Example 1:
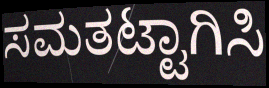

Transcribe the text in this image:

ಸಮತಟ್ಟಾಗಿಸಿ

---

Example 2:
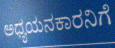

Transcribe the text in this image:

ಅಧ್ಯಯನಕಾರನಿಗೆ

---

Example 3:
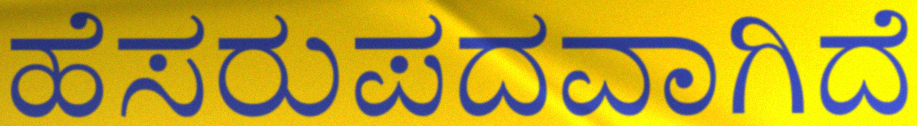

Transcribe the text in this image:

ಹೆಸರುಪದವಾಗಿದೆ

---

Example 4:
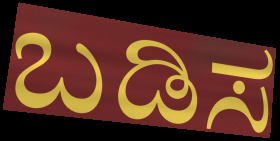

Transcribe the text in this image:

ಬಡಿಸ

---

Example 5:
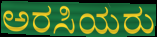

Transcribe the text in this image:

ಅರಸಿಯರು